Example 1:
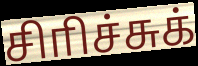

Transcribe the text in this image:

சிரிச்சுக்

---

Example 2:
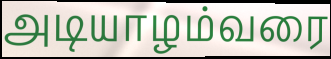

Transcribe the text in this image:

அடியாழம்வரை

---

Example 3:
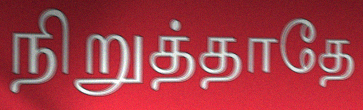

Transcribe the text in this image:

நிறுத்தாதே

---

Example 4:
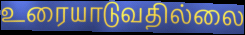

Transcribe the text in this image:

உரையாடுவதில்லை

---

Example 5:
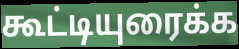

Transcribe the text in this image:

கூட்டியுரைக்க